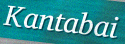
Kantabai